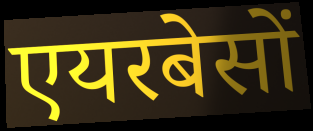
एयरबेसों